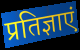
प्रतिज्ञाएं